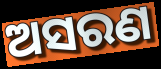
ଅସରଣ